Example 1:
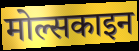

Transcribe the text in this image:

मोल्सकाइन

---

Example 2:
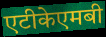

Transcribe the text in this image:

एटीकेएमबी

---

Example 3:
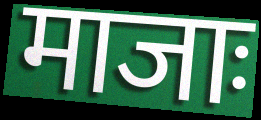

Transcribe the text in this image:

माजाः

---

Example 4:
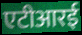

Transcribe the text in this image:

एटीआरई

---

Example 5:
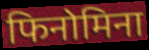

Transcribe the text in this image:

फिनोमिना